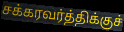
சக்கரவர்த்திக்குச்